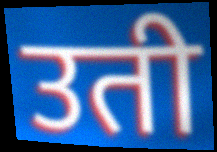
उती